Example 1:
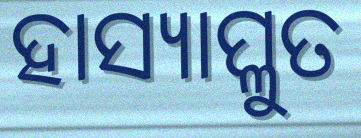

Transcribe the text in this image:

ହାସ୍ୟାପ୍ଳୁତ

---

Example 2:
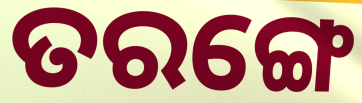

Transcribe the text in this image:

ତରଙ୍ଗେ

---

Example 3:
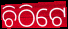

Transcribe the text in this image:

ଚିଠିଟେ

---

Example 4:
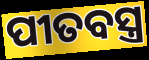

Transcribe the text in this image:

ପୀତବସ୍ତ୍ର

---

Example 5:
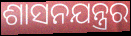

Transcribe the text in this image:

ଶାସନଯନ୍ତ୍ରର